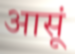
आसूं